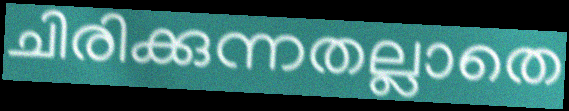
ചിരിക്കുന്നതല്ലാതെ